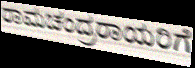
ರಾಮಚಂದ್ರರಾಯರಿಗೆ